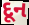
દૂન